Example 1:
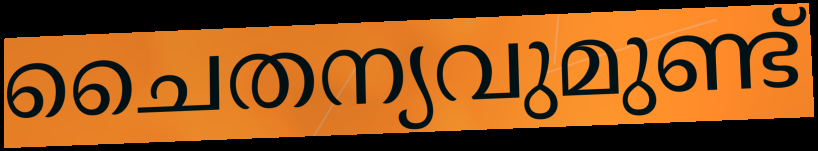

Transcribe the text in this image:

ചൈതന്യവുമുണ്ട്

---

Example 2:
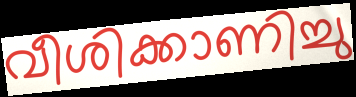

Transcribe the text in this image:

വീശിക്കാണിച്ചു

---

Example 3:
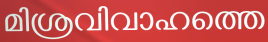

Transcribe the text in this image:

മിശ്രവിവാഹത്തെ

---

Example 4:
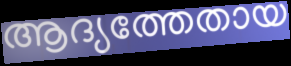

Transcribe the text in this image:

ആദ്യത്തേതായ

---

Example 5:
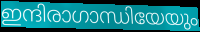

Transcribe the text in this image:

ഇന്ദിരാഗാന്ധിയേയും